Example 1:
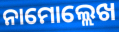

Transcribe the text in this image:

ନାମୋଲ୍ଲେଖ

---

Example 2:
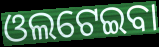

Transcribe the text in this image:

ଓଲଟେଇବା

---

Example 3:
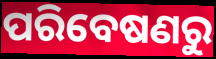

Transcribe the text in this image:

ପରିବେଷଣରୁ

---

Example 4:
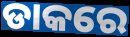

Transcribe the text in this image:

ଡାକରେ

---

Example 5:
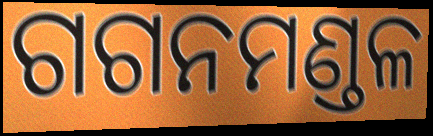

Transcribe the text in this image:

ଗଗନମଣ୍ଡଳ